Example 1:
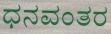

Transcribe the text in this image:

ಧನವಂತರ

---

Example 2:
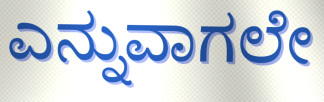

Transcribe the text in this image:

ಎನ್ನುವಾಗಲೇ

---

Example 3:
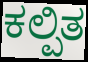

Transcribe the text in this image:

ಕಲ್ಪಿತ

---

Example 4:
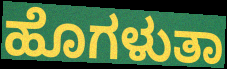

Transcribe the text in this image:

ಹೊಗಳುತಾ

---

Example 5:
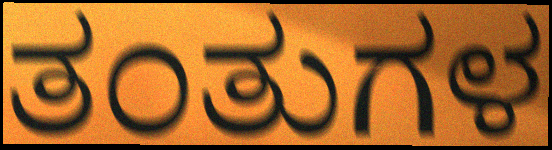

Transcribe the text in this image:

ತಂತುಗಳ